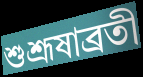
শুশ্রূষাব্রতী